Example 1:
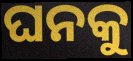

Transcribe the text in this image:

ଘନକୁ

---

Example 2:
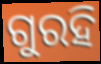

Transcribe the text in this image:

ଗୁରହି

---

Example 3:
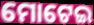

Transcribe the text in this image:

ମୋଟେଇ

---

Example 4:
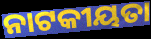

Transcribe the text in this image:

ନାଟକୀୟତା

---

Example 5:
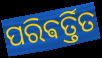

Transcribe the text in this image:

ପରିଵର୍ତ୍ତିତ